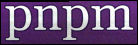
pnpm